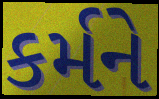
કર્મને